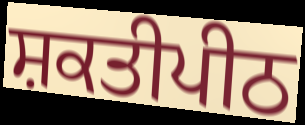
ਸ਼ਕਤੀਪੀਠ